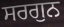
ਸਰਗੁਨ